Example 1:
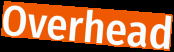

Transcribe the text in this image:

Overhead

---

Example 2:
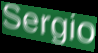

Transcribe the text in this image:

Sergio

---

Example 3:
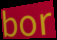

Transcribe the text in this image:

bor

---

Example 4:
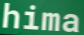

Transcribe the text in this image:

hima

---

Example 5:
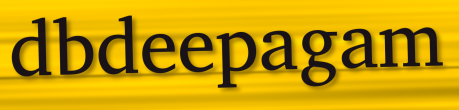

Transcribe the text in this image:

dbdeepagam